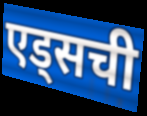
एड्सची